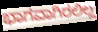
ಭಾಗವಾಗಿರಲಿಲ್ಲ